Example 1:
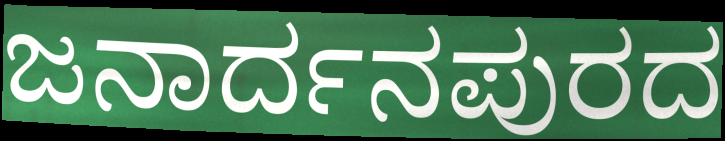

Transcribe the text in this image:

ಜನಾರ್ದನಪುರದ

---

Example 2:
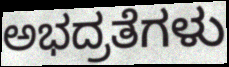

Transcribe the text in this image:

ಅಭದ್ರತೆಗಳು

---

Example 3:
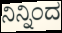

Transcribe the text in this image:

ನಿನ್ನಿಂದ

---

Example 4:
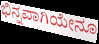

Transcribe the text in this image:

ಭಿನ್ನವಾಗಿಯೇನೂ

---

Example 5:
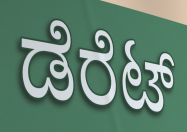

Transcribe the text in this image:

ಡೆರೆಟ್